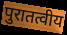
पुरातत्वीय